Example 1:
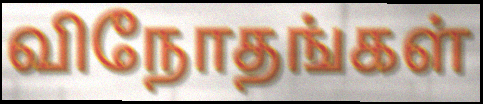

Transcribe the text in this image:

விநோதங்கள்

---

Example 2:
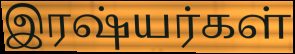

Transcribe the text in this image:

இரஷ்யர்கள்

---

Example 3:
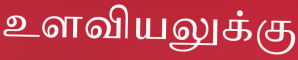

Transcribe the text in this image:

உளவியலுக்கு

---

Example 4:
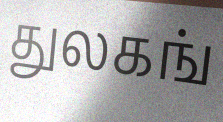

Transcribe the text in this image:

துலகங்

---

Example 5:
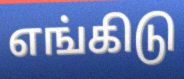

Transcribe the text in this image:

எங்கிடு